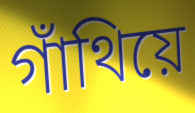
গাঁথিয়ে